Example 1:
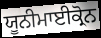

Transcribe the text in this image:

ਯੂਨੀਮਾਈਕ੍ਰੋਨ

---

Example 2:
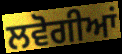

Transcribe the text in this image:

ਲਵੋਗੀਆਂ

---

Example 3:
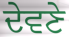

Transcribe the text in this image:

ਦੇਵਣੇ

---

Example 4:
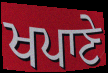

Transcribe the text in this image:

ਖਪਾਣੇ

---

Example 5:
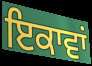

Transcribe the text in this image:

ਇਕਾਵਾਂ